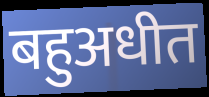
बहुअधीत